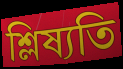
শ্লিষ্যতি